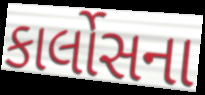
કાર્લોસના